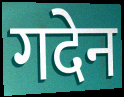
गदेन